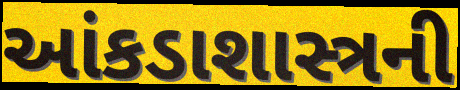
આંકડાશાસ્ત્રની